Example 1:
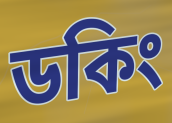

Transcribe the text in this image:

ডকিং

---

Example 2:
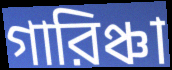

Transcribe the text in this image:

গারিঞ্চা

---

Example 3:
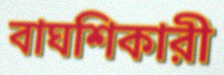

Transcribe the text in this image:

বাঘশিকারী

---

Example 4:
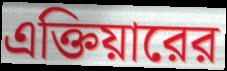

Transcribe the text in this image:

এক্তিয়ারের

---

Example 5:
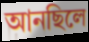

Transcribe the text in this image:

আনছিলে